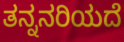
ತನ್ನನರಿಯದೆ